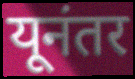
यूनंतर